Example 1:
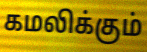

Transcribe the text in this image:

கமலிக்கும்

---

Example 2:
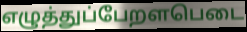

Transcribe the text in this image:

எழுத்துப்பேறளபெடை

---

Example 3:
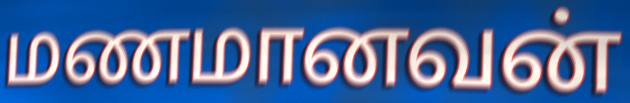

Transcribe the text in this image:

மணமானவன்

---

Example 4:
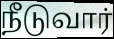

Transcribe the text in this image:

நீடுவார்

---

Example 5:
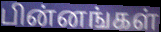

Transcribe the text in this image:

பின்னங்கள்